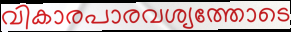
വികാരപാരവശ്യത്തോടെ